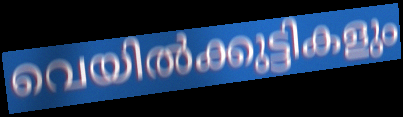
വെയിൽക്കുട്ടികളും